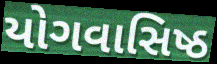
યોગવાસિષ્ઠ